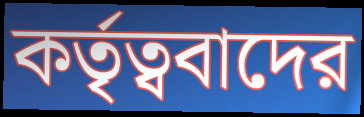
কর্তৃত্ববাদের